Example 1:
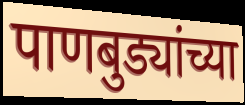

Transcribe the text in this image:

पाणबुड्यांच्या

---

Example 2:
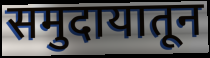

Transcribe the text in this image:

समुदायातून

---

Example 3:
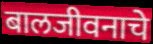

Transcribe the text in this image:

बालजीवनाचे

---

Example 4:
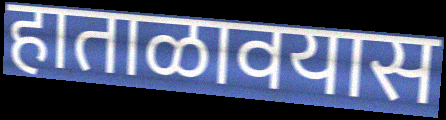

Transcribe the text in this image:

हाताळावयास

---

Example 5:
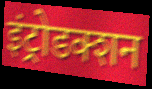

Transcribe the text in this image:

इंट्रोडक्शन